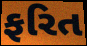
ફરિત